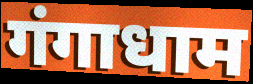
गंगाधाम